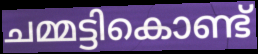
ചമ്മട്ടികൊണ്ട്